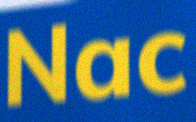
Nac